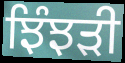
ਝਿੰਝੜੀ